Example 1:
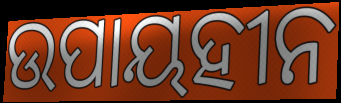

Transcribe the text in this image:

ଉପାୟହୀନ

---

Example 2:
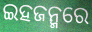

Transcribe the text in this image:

ଇହଜନ୍ମରେ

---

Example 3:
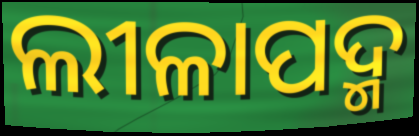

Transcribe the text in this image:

ଲୀଳାପଦ୍ମ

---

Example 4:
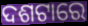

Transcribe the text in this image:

ଦଶଟାରେ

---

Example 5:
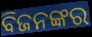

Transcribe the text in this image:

ବିଜନଙ୍କର